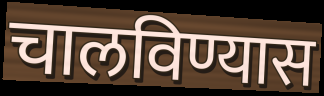
चालविण्यास